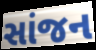
સાંજન